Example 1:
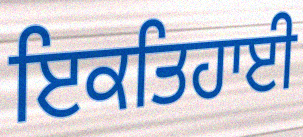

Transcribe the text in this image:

ਇਕਤਿਹਾਈ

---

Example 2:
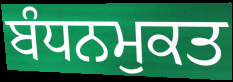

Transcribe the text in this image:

ਬੰਧਨਮੁਕਤ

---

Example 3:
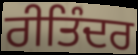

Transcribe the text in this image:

ਰੀਤਿੰਦਰ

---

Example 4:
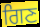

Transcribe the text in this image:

ਗਿਣ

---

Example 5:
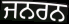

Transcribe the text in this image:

ਜਨਰਨ